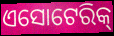
ଏସୋଟେରିକ୍